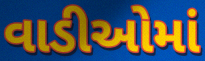
વાડીઓમાં